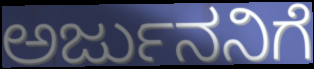
ಅರ್ಜುನನಿಗೆ